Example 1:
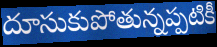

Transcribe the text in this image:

దూసుకుపోతున్నప్పటికీ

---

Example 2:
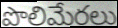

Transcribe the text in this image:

పొలిమేరలు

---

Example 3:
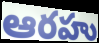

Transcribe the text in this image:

ఆరహు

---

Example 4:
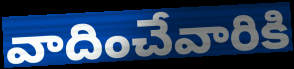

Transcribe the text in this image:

వాదించేవారికి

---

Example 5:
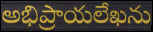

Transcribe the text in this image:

అభిప్రాయలేఖను